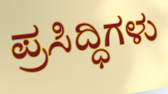
ಪ್ರಸಿದ್ಧಿಗಳು